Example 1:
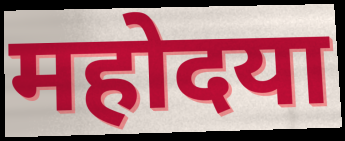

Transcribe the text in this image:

महोदया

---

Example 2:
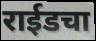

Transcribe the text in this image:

राईडचा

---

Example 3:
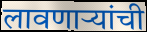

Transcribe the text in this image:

लावणाऱ्यांची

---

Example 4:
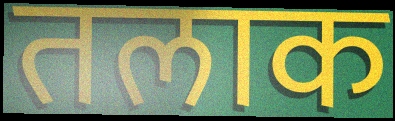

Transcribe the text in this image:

तलाक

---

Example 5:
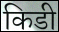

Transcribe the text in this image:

किडी